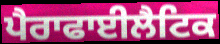
ਪੈਰਾਫਾਈਲੈਟਿਕ